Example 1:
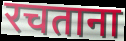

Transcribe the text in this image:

रचताना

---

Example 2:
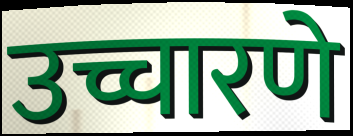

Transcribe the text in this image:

उच्चारणे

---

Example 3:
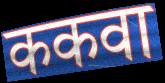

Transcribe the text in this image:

ककवा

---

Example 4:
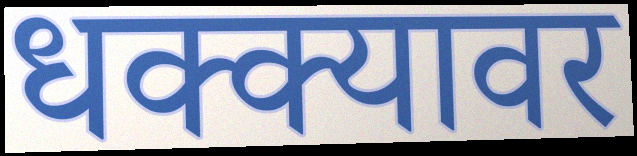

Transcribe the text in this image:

धक्क्यावर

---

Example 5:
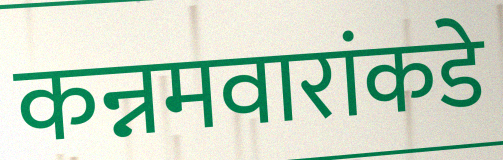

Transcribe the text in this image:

कन्नमवारांकडे